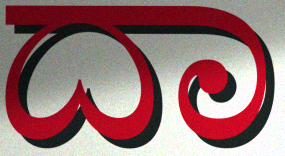
ದಾ